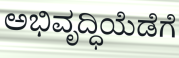
ಅಭಿವೃದ್ಧಿಯೆಡೆಗೆ